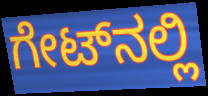
ಗೇಟ್‌ನಲ್ಲಿ